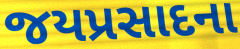
જયપ્રસાદના